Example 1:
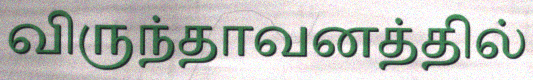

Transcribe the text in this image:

விருந்தாவனத்தில்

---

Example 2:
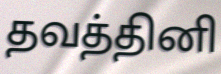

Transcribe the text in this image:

தவத்தினி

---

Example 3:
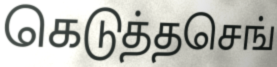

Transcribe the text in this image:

கெடுத்தசெங்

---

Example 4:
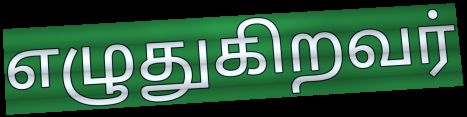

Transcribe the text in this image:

எழுதுகிறவர்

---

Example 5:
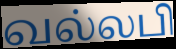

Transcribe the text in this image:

வல்லபி